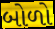
બોળો